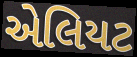
એલિયટ